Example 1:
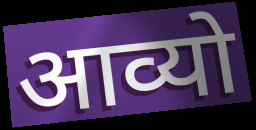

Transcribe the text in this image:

आव्यो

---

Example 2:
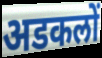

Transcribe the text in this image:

अडकलों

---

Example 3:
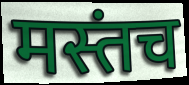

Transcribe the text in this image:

मस्तंच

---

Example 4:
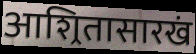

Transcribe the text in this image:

आश्रितासारखं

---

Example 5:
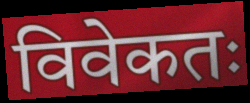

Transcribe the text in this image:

विवेकतः